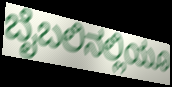
ಬೈಬಲಿನಲ್ಲಿಯೂ